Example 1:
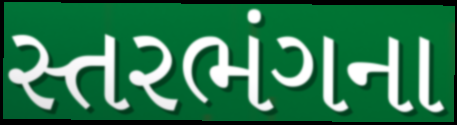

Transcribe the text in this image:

સ્તરભંગના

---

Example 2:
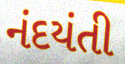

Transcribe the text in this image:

નંદયંતી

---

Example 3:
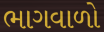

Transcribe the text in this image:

ભાગવાળો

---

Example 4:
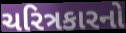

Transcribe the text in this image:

ચરિત્રકારનો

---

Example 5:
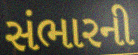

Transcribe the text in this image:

સંભારની